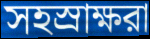
সহস্রাক্ষরা